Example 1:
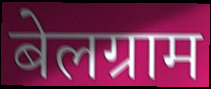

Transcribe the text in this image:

बेलग्राम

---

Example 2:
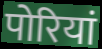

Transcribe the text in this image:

पोरियां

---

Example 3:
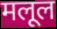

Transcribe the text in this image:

मलूल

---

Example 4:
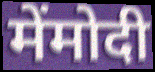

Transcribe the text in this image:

मेंमोदी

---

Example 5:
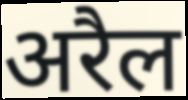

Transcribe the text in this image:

अरैल